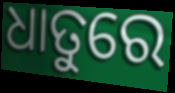
ଧାତୁରେ